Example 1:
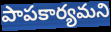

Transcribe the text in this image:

పాపకార్యమని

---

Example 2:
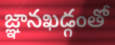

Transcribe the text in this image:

జ్ఞానఖడ్గంతో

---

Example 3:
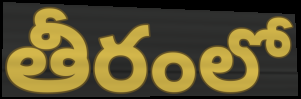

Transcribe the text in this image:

తీరంలో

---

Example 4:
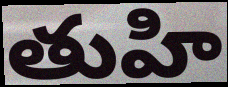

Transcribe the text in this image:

తుహి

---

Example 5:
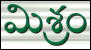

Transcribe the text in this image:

మిశ్రం